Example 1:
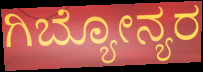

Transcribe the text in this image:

ಗಿಬ್ಯೋನ್ಯರ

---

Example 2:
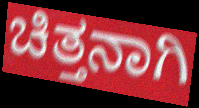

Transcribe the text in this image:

ಚಿತ್ತನಾಗಿ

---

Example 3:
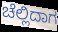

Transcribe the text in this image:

ಚೆಲ್ಲಿದಾಗ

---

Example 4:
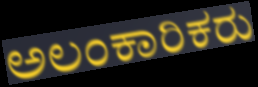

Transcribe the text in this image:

ಅಲಂಕಾರಿಕರು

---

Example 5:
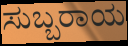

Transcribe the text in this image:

ಸುಬ್ಬರಾಯ